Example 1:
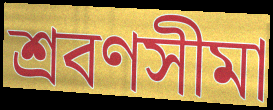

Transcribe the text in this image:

শ্রবণসীমা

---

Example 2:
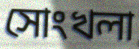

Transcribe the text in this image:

সোংখলা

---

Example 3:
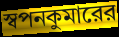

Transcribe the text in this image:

স্বপনকুমারের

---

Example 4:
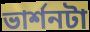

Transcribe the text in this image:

ভার্শনটা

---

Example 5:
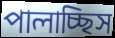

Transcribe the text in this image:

পালাচ্ছিস